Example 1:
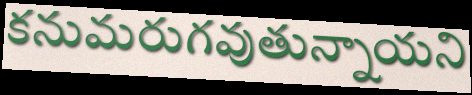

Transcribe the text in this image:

కనుమరుగవుతున్నాయని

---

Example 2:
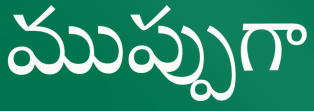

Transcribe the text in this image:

ముప్పుగా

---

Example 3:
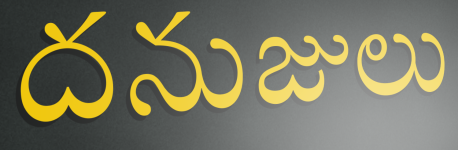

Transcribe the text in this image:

దనుజులు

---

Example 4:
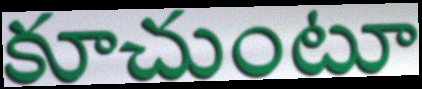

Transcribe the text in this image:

కూచుంటూ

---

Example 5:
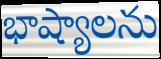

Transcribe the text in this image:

భాష్యాలను